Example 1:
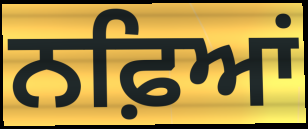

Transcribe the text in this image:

ਨਫ਼ਿਆਂ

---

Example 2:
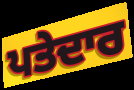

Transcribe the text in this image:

ਪਤੇਦਾਰ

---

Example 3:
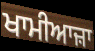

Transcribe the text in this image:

ਖਾਮੀਆਜ਼ਾ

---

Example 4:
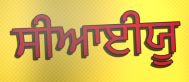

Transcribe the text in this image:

ਸੀਆਈਯੂ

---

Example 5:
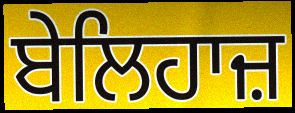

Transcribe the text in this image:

ਬੇਲਿਹਾਜ਼